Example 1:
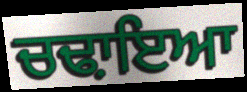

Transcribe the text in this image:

ਚਢ਼ਾਇਆ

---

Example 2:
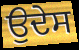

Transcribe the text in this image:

ਉਦੇਸ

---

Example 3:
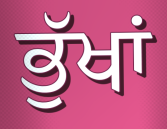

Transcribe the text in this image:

ਭੁੱਖਾਂ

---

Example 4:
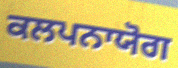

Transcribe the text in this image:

ਕਲਪਨਾਯੋਗ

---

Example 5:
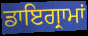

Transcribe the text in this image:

ਡਾਇਗ੍ਰਾਮਾਂ